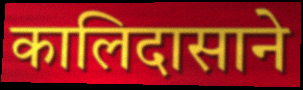
कालिदासाने